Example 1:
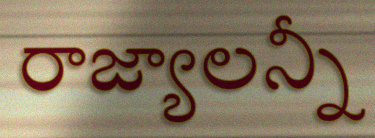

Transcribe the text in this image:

రాజ్యాలన్నీ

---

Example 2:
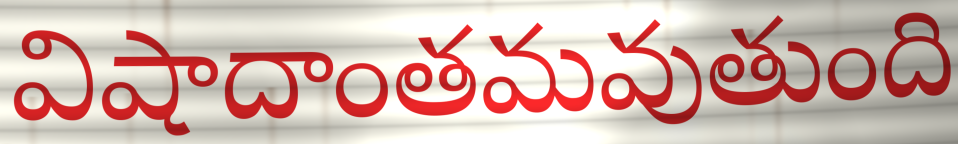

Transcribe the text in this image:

విషాదాంతమవుతుంది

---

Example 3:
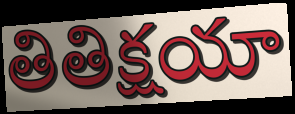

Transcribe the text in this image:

తితిక్షయా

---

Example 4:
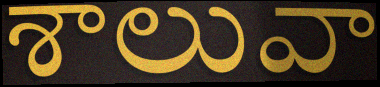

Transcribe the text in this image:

శాలువా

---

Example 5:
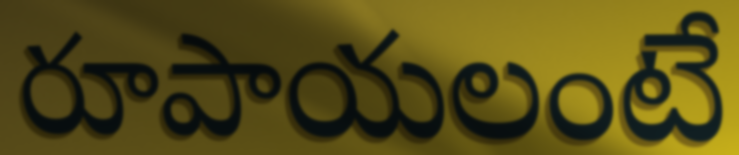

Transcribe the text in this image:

రూపాయలంటే